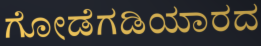
ಗೋಡೆಗಡಿಯಾರದ